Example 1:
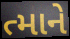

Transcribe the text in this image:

ત્માને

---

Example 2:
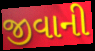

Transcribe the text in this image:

જીવાની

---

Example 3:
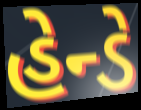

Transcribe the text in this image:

હેન્ડે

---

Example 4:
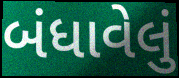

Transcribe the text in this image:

બંધાવેલું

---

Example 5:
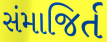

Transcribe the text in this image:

સંમાજિર્ત